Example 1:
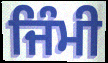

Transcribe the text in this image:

ਜਿੰਮੀ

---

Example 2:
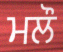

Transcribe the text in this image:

ਮਲੌ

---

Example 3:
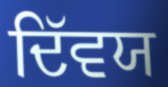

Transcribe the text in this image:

ਦਿੱਵਯ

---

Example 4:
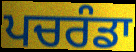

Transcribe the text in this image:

ਪਚਰੰਡਾ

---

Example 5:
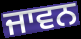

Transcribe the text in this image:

ਜਾਵਨ